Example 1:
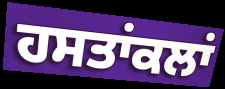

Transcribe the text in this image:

ਹਸਤਾਂਕਲਾਂ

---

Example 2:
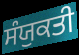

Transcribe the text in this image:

ਸੰਯੁਕਤੀ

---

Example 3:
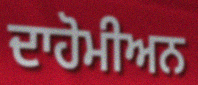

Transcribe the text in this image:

ਦਾਹੋਮੀਅਨ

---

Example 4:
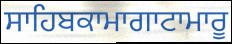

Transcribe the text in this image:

ਸਾਹਿਬਕਾਮਾਗਾਟਾਮਾਰੂ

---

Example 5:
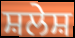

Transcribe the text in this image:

ਸ਼ਲੇਸ਼